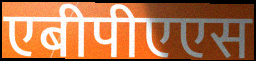
एबीपीएएस